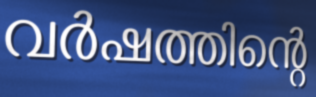
വർഷത്തിന്റെ